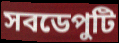
সবডেপুটি